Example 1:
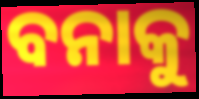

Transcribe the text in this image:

ବନାକୁ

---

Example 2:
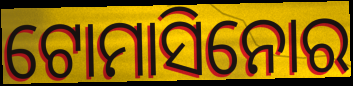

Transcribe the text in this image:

ଟୋମାସିନୋର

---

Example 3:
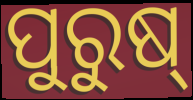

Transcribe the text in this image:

ପୁରୁଷ୍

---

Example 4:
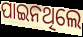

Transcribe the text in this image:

ପାଇନଥିଲେ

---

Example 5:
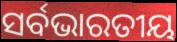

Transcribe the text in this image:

ସର୍ବଭାରତୀୟ